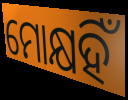
ମୋକ୍ଷହିଁ